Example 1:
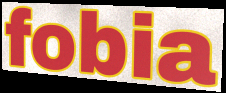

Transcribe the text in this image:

fobia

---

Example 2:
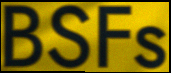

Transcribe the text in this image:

BSFs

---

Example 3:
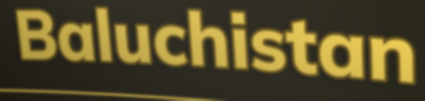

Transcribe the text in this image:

Baluchistan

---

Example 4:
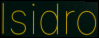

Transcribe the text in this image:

Isidro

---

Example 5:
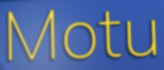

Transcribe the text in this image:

Motu